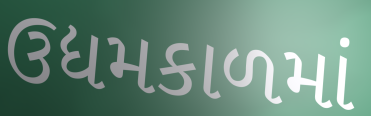
ઉદ્યમકાળમાં